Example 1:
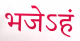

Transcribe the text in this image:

भजेऽहं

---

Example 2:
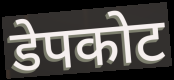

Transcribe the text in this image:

डेपकोट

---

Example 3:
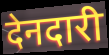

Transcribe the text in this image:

देनदारी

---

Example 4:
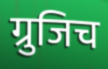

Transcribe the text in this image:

ग्रुजिच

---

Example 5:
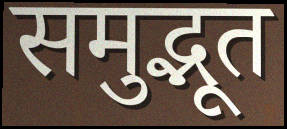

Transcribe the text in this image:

समुद्भूत